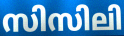
സിസിലി